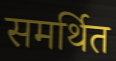
समर्थित